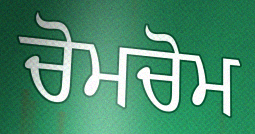
ਚੋਮਚੋਮ